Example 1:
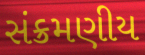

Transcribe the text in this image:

સંક્રમણીય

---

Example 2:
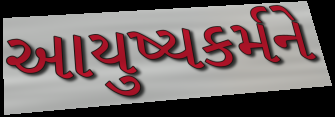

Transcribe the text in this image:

આયુષ્યકર્મને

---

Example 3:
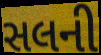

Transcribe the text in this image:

સલની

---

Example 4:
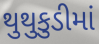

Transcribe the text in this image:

થુથુકુડીમાં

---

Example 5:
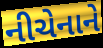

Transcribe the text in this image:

નીચેનાને